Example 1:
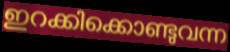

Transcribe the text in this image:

ഇറക്കിക്കൊണ്ടുവന്ന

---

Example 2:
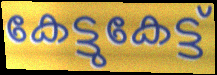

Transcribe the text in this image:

കേട്ടുകേട്ട്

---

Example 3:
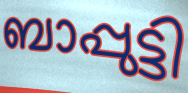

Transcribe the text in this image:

ബാപ്പുട്ടി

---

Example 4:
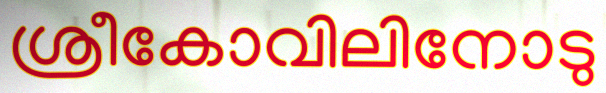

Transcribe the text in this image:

ശ്രീകോവിലിനോടു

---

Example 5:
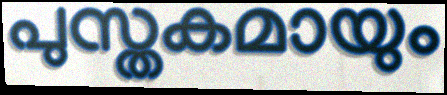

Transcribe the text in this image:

പുസ്തകമായും